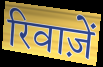
रिवाज़ें